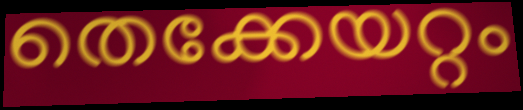
തെക്കേയറ്റം